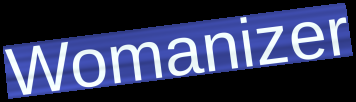
Womanizer